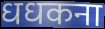
धधकना